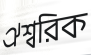
ঐশ্বরিক